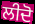
ਲੀਦੋ